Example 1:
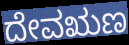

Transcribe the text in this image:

ದೇವಋಣ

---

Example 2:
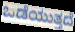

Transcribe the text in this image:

ಒಡೆಯುತ್ತದೆ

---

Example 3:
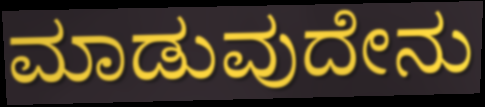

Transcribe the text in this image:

ಮಾಡುವುದೇನು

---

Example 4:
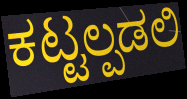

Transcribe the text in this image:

ಕಟ್ಟಲ್ಪಡಲಿ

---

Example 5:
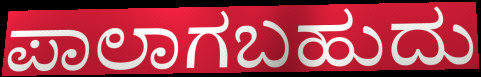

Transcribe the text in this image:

ಪಾಲಾಗಬಹುದು